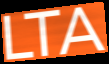
LTA